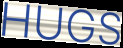
HUGS